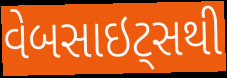
વેબસાઇટ્સથી